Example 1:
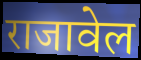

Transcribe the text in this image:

राजावेल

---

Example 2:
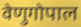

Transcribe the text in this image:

वेणुगोपाल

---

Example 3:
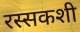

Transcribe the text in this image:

रस्सकशी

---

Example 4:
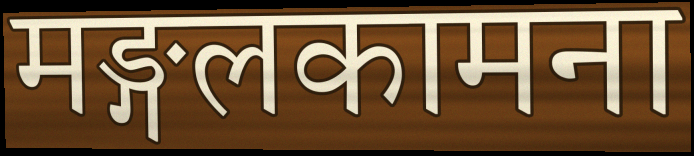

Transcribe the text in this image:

मङ्गलकामना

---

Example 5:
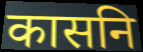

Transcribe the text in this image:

कासनि